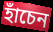
হাঁচেন